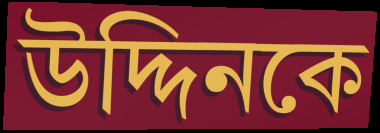
উদ্দিনকে